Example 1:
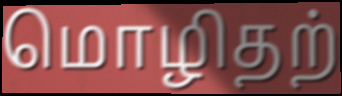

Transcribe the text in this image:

மொழிதற்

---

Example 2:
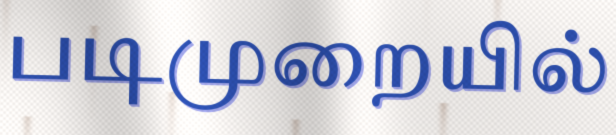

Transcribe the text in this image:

படிமுறையில்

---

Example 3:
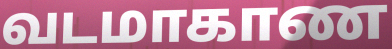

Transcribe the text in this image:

வடமாகாண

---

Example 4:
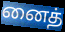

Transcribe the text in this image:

னைத்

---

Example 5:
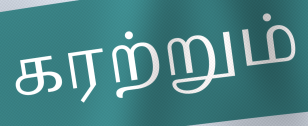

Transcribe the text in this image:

கரற்றும்